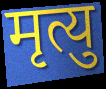
मृत्यु